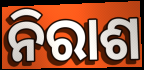
ନିରାଶ